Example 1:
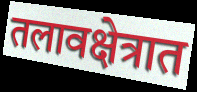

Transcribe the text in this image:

तलावक्षेत्रात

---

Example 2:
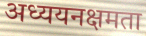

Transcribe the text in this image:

अध्ययनक्षमता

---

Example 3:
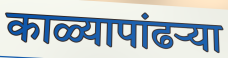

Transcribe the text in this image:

काळ्यापांढर्‍या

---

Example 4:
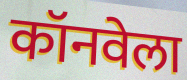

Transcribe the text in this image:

कॉनवेला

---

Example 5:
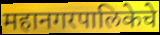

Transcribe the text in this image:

महानगरपालिकेचे